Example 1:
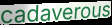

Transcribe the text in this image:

cadaverous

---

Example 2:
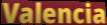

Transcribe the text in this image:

Valencia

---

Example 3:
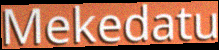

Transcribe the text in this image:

Mekedatu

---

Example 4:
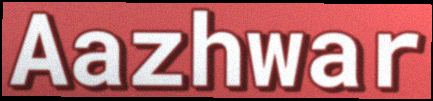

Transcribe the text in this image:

Aazhwar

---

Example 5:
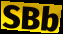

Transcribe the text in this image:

SBb